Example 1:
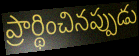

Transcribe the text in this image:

ప్రార్థించినప్పుడు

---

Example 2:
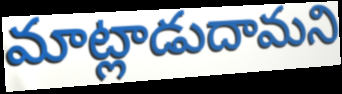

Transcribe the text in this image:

మాట్లాడుదామని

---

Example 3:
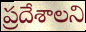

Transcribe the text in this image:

ప్రదేశాలని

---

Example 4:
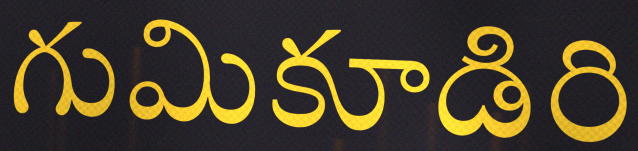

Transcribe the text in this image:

గుమికూడిరి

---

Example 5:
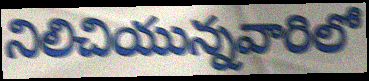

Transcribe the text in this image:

నిలిచియున్నవారిలో